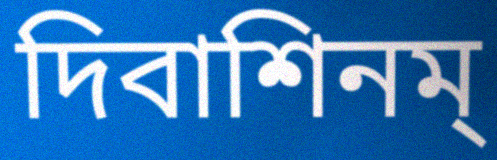
দিবাশিনম্